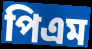
পিএম